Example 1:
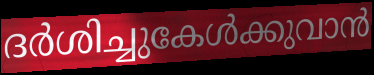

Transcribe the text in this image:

ദർശിച്ചുകേൾക്കുവാൻ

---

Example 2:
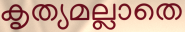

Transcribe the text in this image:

കൃത്യമല്ലാതെ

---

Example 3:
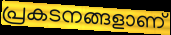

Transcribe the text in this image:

പ്രകടനങ്ങളാണ്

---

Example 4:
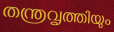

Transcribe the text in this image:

തന്ത്രവൃത്തിയും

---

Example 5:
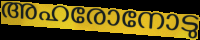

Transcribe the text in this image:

അഹരോനോടു